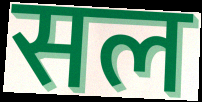
सल